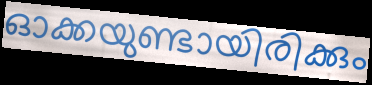
ഓക്കയുണ്ടായിരിക്കും